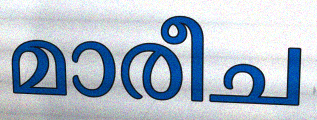
മാരീച